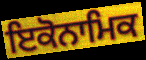
ਇਕੋਨਾਮਿਕ